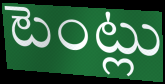
టెంట్లు